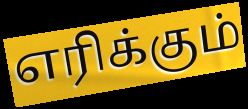
எரிக்கும்